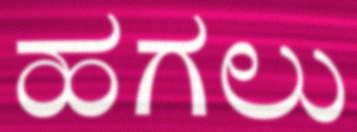
ಹಗಲು